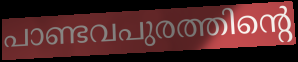
പാണ്ടവപുരത്തിന്റെ